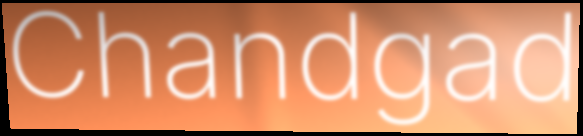
Chandgad